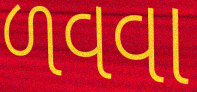
ળવવા